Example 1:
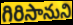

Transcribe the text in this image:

గిరిసానుని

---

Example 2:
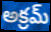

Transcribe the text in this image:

అక్రమ్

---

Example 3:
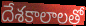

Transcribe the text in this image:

దేశకాలాలతో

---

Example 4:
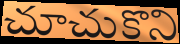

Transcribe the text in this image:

చూచుకొని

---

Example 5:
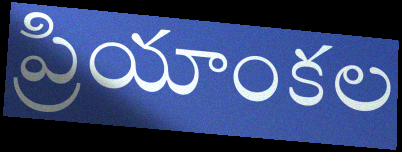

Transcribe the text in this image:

ప్రియాంకల